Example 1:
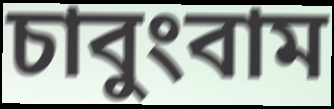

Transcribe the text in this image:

চাবুংবাম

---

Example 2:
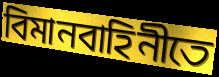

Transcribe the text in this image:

বিমানবাহিনীতে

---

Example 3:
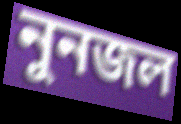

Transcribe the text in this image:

নুনজল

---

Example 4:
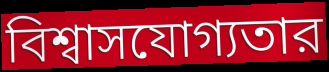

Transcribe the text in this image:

বিশ্বাসযোগ্যতার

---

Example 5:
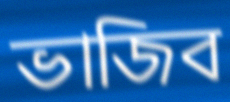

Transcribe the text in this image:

ভাজিব